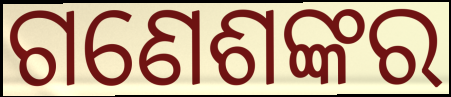
ଗଣେଶଙ୍କର